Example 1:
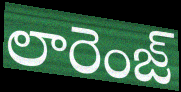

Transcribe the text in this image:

లారెంజ్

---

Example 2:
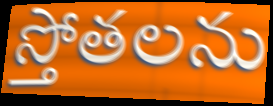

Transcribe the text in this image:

స్తోతలను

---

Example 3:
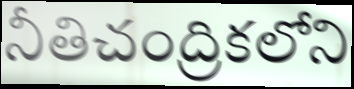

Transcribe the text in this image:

నీతిచంద్రికలోని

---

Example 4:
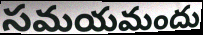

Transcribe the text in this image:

సమయమందు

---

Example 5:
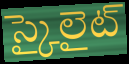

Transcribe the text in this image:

స్కైలైట్